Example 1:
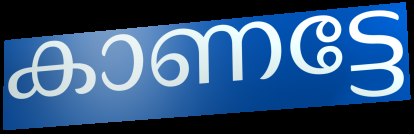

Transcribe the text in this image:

കാണട്ടേ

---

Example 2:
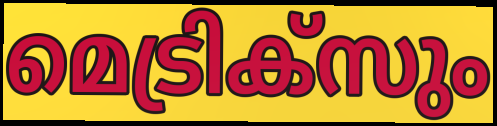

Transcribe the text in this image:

മെട്രിക്സും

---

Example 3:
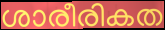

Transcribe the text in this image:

ശാരീരികത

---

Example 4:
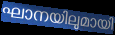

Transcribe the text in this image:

ഘാനയിലുമായി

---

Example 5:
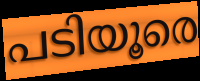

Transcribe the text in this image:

പടിയൂരെ